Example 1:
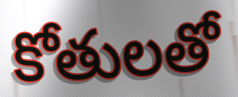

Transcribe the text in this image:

కోతులతో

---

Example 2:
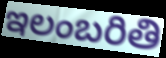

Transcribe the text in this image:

ఇలంబరితి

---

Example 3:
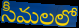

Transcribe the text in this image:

సీమలలో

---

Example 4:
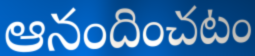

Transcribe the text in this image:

ఆనందించటం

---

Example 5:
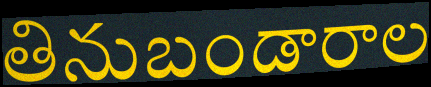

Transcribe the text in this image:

తినుబండారాల